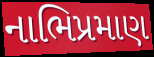
નાભિપ્રમાણ